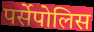
पर्सेपोलिस